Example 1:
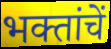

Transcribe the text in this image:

भक्तांचें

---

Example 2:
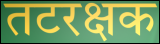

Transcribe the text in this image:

तटरक्षक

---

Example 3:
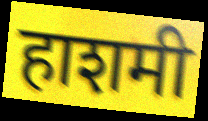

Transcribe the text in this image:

हाशमी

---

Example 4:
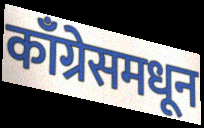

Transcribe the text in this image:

काँग्रेसमधून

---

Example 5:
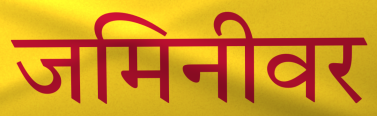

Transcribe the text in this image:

जमिनीवर